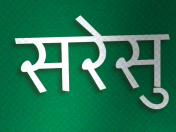
सरेसु